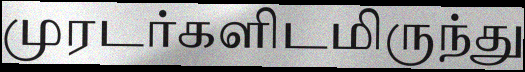
முரடர்களிடமிருந்து